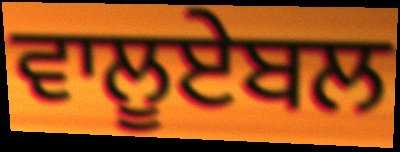
ਵਾਲੂਏਬਲ